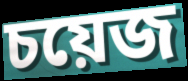
চয়েজ